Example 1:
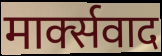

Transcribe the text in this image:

मार्क्‍सवाद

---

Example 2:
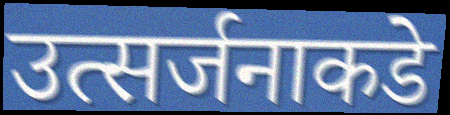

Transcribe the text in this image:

उत्सर्जनाकडे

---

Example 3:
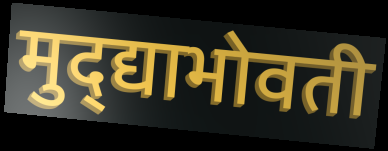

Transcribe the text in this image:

मुद्द्याभोवती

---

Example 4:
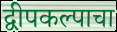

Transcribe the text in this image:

द्वीपकल्पाचा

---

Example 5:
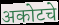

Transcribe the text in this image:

अकोटचे